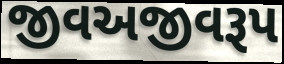
જીવઅજીવરૂપ